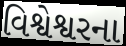
વિશ્વેશ્વરના